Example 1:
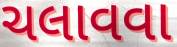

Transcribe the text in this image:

ચલાવવા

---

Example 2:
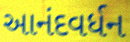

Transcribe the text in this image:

આનંદવર્ધન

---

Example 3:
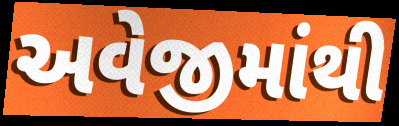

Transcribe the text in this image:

અવેજીમાંથી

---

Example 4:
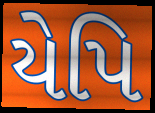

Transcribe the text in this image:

યેપિ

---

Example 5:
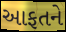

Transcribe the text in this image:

આફતને